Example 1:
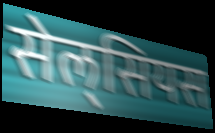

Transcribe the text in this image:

सेल्सियस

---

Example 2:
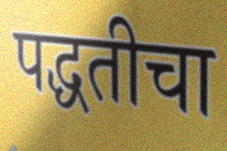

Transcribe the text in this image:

पद्धतीचा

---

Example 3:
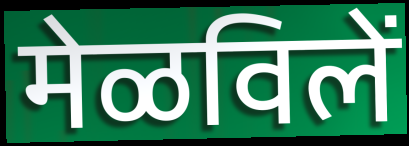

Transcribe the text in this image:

मेळविलें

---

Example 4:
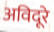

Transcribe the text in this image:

अविदूरे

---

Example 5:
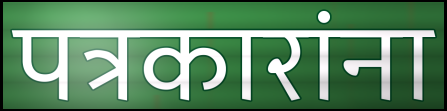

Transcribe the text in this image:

पत्रकारांना